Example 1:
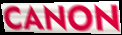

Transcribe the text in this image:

CANON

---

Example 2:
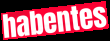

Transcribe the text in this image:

habentes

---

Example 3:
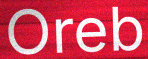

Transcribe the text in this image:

Oreb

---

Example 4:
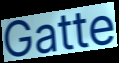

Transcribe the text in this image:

Gatte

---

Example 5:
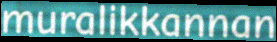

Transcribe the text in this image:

muralikkannan